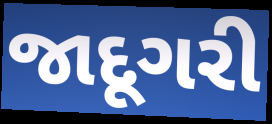
જાદૂગરી